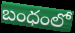
బంధంలో